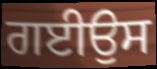
ਗਈਉਸ